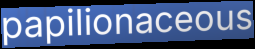
papilionaceous